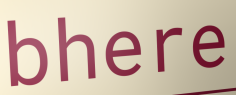
bhere